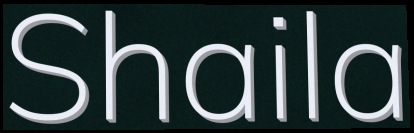
Shaila